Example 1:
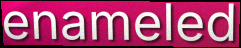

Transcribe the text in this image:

enameled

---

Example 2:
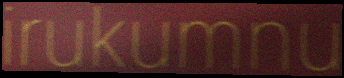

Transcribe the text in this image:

irukumnu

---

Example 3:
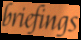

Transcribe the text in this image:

briefings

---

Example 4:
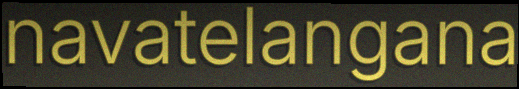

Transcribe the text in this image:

navatelangana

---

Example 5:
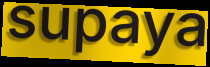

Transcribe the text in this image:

supaya